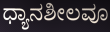
ಧ್ಯಾನಶೀಲವೂ